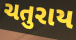
ચતુરાય